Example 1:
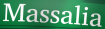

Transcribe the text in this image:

Massalia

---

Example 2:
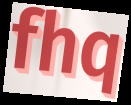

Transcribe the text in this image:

fhq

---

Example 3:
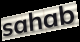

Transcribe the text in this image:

sahab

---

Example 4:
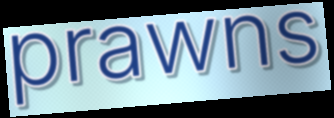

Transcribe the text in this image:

prawns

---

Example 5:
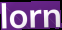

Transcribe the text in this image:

lorn